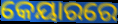
କେୟାରରେ